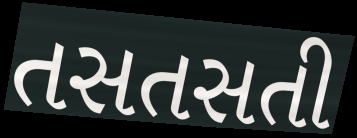
તસતસતી